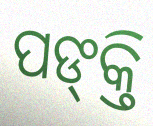
ପଙ୍‍କ୍ତି